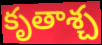
కృతాశ్చ